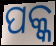
ପକ୍କ